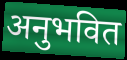
अनुभवित